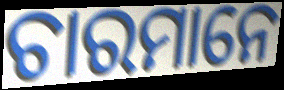
ଚାରମାନେ